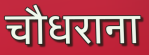
चौधराना